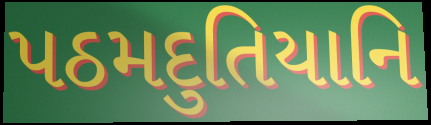
પઠમદુતિયાનિ